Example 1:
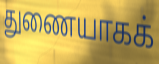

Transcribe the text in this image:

துணையாகக்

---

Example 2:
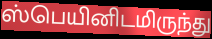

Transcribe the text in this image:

ஸ்பெயினிடமிருந்து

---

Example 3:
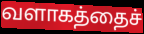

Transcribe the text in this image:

வளாகத்தைச்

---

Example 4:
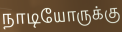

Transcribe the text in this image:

நாடியோருக்கு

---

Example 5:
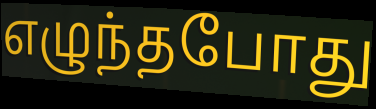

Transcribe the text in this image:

எழுந்தபோது